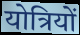
योत्रियों